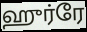
ஹுர்ரே